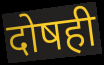
दोषही